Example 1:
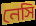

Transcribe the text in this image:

নেসি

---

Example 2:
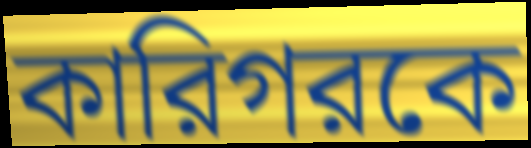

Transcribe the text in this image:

কারিগরকে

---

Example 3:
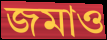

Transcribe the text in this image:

জমাও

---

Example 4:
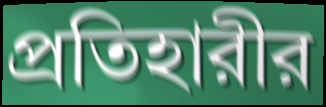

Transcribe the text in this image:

প্রতিহারীর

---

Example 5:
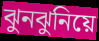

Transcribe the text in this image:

ঝুনঝুনিয়ে